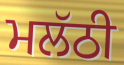
ਮਲੱਠੀ